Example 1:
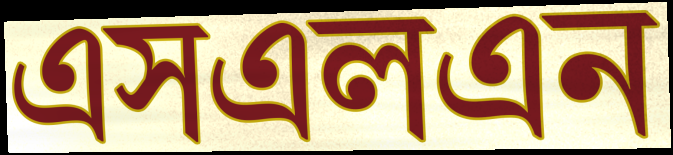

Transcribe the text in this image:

এসএলএন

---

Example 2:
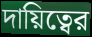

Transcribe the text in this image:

দায়িত্বের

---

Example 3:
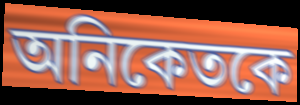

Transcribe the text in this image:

অনিকেতকে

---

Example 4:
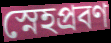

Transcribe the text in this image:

স্নেহপ্রবণ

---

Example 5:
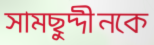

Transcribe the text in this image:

সামছুদ্দীনকে